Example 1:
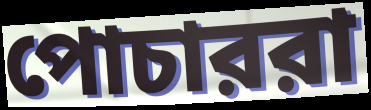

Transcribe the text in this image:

পোচাররা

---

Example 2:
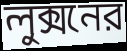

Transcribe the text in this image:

লুক্সনের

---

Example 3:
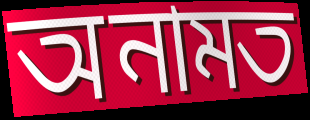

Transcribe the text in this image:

অনামত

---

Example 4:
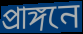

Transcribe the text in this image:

প্রাঙ্গনে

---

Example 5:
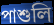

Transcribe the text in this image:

পাশুলি